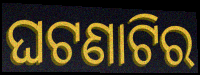
ଘଟଣାଟିର